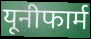
यूनीफार्म